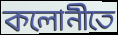
কলোনীতে